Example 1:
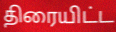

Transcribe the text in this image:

திரையிட்ட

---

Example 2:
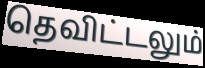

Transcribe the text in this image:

தெவிட்டலும்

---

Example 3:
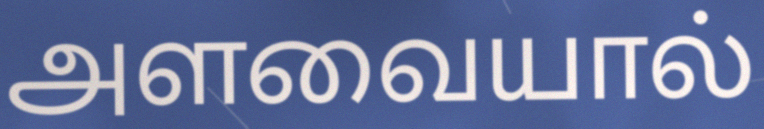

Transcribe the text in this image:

அளவையால்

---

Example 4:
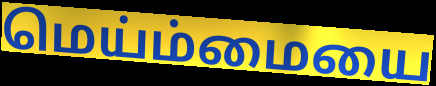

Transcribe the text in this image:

மெய்ம்மையை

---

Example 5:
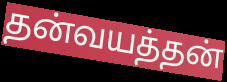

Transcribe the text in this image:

தன்வயத்தன்